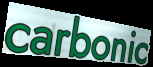
carbonic